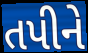
તપીને